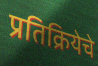
प्रतिक्रियेचे